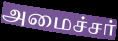
அமைச்சர்